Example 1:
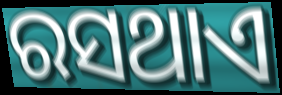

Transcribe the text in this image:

ରସଥାଏ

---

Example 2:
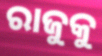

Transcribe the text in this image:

ରାଜୁକୁ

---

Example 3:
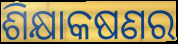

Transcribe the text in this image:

ଶିକ୍ଷାକଷଣର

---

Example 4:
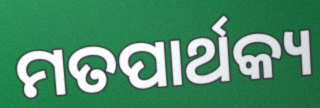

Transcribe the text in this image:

ମତପାର୍ଥକ୍ୟ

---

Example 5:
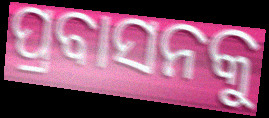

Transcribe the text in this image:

ପ୍ରବାସନକୁ